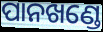
ପାନଖଣ୍ଡେ